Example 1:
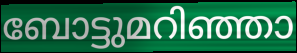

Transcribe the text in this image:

ബോട്ടുമറിഞ്ഞാ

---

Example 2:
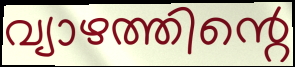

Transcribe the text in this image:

വ്യാഴത്തിന്റെ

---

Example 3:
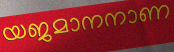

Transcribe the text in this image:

യജമാനനാണ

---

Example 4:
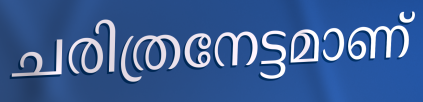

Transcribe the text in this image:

ചരിത്രനേട്ടമാണ്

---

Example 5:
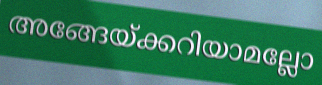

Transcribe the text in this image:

അങ്ങേയ്ക്കറിയാമല്ലോ